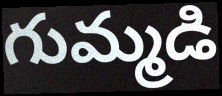
గుమ్మడి